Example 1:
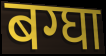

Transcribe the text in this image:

बग्घा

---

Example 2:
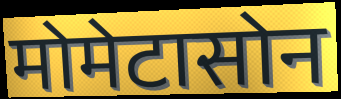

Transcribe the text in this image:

मोमेटासोन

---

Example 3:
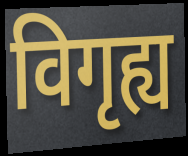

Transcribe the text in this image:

विगृह्य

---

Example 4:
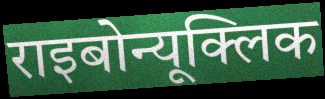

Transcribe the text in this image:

राइबोन्यूक्लिक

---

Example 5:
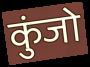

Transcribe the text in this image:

कुंजो